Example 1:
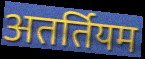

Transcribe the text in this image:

अतर्तियम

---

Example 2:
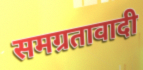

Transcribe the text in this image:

समग्रतावादी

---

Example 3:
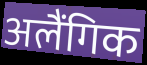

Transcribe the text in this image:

अलैंगिक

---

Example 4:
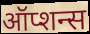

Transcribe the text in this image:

ऑप्शन्स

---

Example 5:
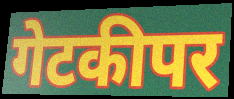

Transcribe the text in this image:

गेटकीपर